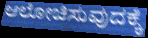
ಆಲೋಚಿಸುವುದಕ್ಕೆ